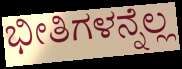
ಭೀತಿಗಳನ್ನೆಲ್ಲ